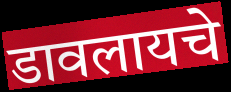
डावलायचे